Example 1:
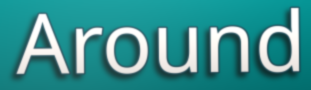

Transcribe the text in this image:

Around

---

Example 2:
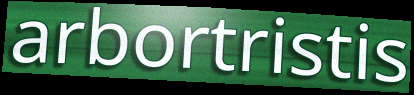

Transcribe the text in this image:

arbortristis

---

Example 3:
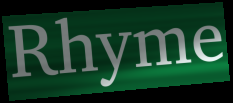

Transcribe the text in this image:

Rhyme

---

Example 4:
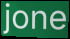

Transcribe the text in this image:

jone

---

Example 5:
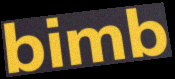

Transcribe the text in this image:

bimb